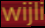
wijli